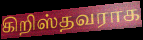
கிறிஸ்தவராக